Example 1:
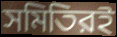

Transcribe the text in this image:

সমিতিরই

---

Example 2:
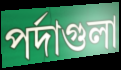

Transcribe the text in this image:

পর্দাগুলা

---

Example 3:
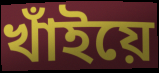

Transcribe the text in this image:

খাঁইয়ে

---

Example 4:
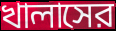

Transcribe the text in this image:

খালাসের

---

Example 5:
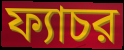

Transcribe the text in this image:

ফ্যাচর